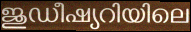
ജുഡീഷ്യറിയിലെ